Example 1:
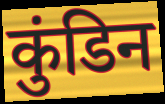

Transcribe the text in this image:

कुंडिन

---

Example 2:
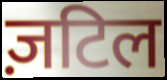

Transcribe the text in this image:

ज़टिल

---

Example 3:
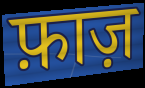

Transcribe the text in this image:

फ़ाज़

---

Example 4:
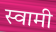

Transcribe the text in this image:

स्‍वामी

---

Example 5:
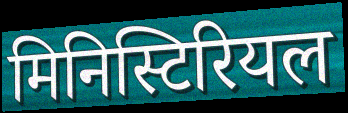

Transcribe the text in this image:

मिनिस्टिरियल